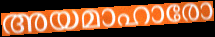
അയമാഹാരോ